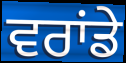
ਵਰਾਂਡੇ